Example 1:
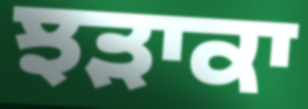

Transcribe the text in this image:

ਝੜਾਕਾ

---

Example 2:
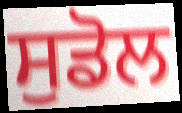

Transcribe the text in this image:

ਸੁਡੋਲ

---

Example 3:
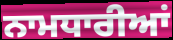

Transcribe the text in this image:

ਨਾਮਧਾਰੀਆਂ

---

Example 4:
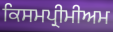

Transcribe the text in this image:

ਕਿਸਮਪ੍ਰੀਮੀਅਮ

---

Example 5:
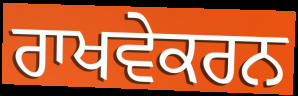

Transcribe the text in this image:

ਰਾਖਵੇਕਰਨ